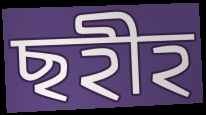
ছহীহ